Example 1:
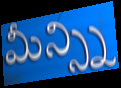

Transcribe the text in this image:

మీన్స్ని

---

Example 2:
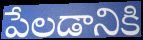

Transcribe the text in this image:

పేలడానికి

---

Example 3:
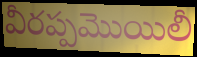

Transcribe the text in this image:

వీరప్పమొయిలీ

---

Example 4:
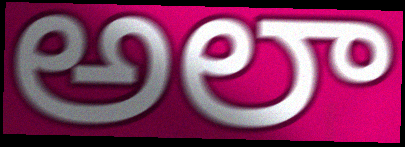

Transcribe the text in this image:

అలా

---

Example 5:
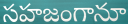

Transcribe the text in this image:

సహజంగానూ